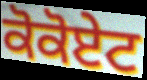
ਕੋਕੋਏਟ